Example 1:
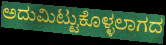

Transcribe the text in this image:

ಅದುಮಿಟ್ಟುಕೊಳ್ಳಲಾಗದ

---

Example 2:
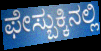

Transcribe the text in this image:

ಫೇಸ್ಬುಕ್ಕಿನಲ್ಲಿ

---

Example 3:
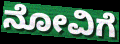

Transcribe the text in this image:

ನೋವಿಗೆ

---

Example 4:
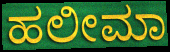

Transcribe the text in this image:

ಹಲೀಮಾ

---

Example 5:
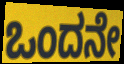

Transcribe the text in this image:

ಒಂದನೇ